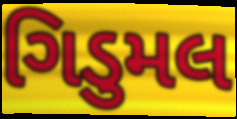
ગિડુમલ